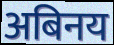
अबिनय